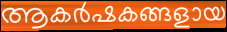
ആകർഷകങ്ങളായ